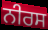
ਨੀਰਸ